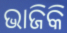
ଭାଜିକି